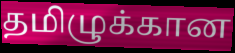
தமிழுக்கான